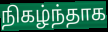
நிகழ்ந்தாக